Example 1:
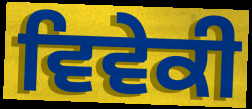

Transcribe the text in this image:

ਵਿਵੇਕੀ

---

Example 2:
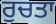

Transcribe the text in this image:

ਰੁਚਤਾ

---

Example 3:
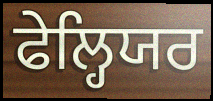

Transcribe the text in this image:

ਫੇਲ੍ਹਿਯਰ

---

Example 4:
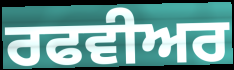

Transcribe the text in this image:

ਰਫਵੀਅਰ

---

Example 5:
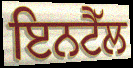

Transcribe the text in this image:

ਇਨਟੈੱਲ